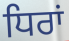
ਧਿਰਾਂ